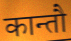
कान्तौ